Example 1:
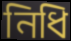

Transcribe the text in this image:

নিধি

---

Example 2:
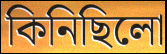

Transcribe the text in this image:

কিনিছিলো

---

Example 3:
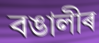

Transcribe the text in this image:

বঙালীৰ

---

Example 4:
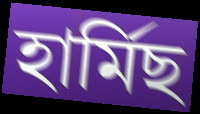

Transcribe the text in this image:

হাৰ্মিছ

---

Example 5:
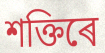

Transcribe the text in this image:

শক্তিৰে